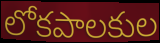
లోకపాలకుల